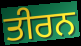
ਤੀਰਨ